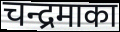
चन्द्रमाका